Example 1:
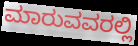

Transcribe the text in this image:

ಮಾರುವವರಲ್ಲಿ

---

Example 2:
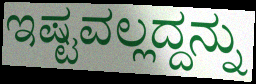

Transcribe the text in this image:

ಇಷ್ಟವಲ್ಲದ್ದನ್ನು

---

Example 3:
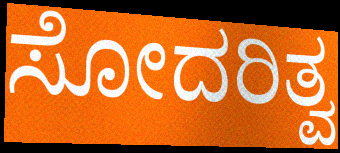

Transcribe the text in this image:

ಸೋದರಿತ್ವ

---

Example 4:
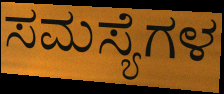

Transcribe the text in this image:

ಸಮಸ್ಯೆಗಳ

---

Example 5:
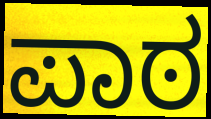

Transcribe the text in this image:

ಪಾಠ